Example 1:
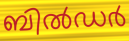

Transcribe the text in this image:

ബിൽഡർ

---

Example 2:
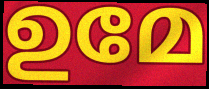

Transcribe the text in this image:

ഉമേ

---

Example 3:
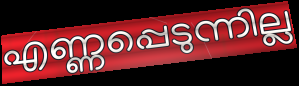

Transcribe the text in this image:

എണ്ണപ്പെടുന്നില്ല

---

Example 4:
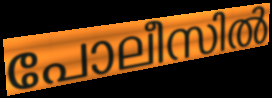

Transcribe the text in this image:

പോലീസിൽ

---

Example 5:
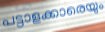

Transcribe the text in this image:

പട്ടാളക്കാരെയും